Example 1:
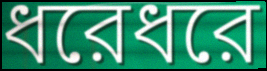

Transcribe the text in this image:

ধরেধরে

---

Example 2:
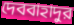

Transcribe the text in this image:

দেববাহাদুর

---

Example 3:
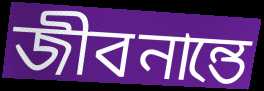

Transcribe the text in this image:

জীবনান্তে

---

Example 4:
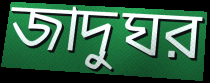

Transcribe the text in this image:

জাদুঘর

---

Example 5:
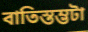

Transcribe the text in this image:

বাতিস্তম্ভটা